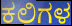
ಕಲಿಗಳ